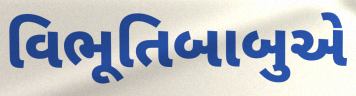
વિભૂતિબાબુએ